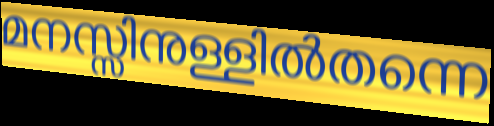
മനസ്സിനുള്ളിൽതന്നെ